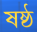
ষষ্ঠ